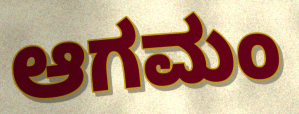
ಆಗಮಂ